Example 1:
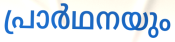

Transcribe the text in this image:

പ്രാർഥനയും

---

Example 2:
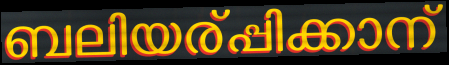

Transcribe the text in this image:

ബലിയര്പ്പിക്കാന്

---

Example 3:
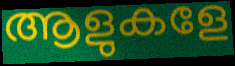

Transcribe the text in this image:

ആളുകളേ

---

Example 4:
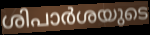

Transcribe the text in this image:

ശിപാർശയുടെ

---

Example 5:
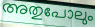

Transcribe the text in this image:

അതുപോലും